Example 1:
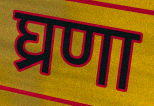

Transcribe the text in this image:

घ्रणा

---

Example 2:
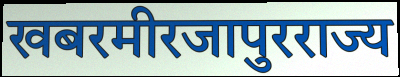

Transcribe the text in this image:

खबरमीरजापुरराज्य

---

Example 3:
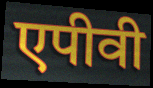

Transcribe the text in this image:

एपीवी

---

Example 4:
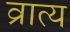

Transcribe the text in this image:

व्रात्य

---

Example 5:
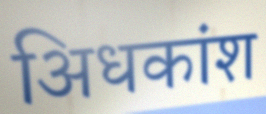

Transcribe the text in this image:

अिधकांश